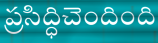
ప్రసిద్ధిచెందింది